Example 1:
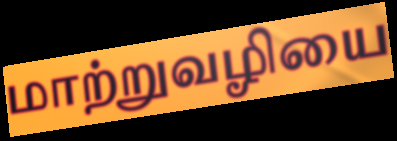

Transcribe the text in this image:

மாற்றுவழியை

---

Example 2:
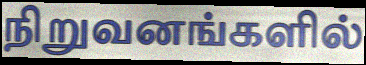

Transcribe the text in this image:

நிறுவனங்களில்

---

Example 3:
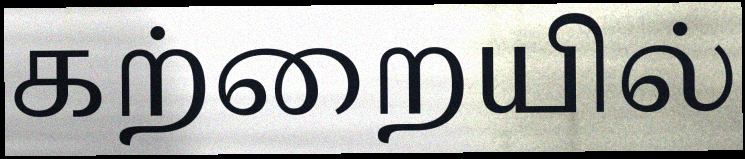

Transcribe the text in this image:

கற்றையில்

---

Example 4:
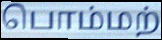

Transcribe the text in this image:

பொம்மற்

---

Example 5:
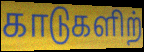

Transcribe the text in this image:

காடுகளிற்